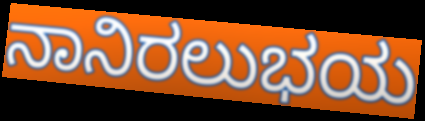
ನಾನಿರಲುಭಯ